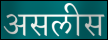
असलीस